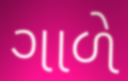
ગાળે